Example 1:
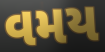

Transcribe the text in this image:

વમય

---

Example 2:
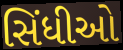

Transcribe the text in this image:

સિંધીઓ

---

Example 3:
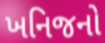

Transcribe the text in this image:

ખનિજનો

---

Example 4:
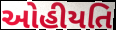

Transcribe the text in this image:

ઓહીયતિ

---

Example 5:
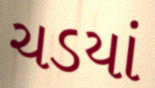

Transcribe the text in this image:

ચડયાં